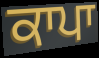
ਕਾਪਾ